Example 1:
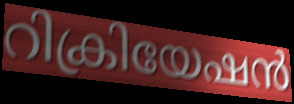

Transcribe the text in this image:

റിക്രിയേഷൻ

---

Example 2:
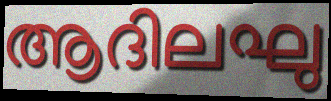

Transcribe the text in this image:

ആദിലഘു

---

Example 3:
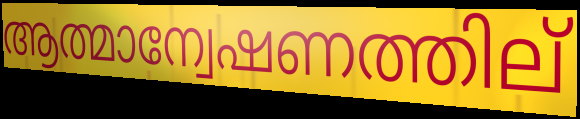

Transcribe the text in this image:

ആത്മാന്വേഷണത്തില്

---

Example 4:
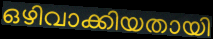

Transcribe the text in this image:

ഒഴിവാക്കിയതായി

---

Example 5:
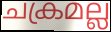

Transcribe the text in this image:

ചക്രമല്ല